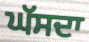
ਘੱਸਦਾ